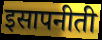
इसापनीती